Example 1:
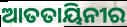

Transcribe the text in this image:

ଆତତାୟିନୀର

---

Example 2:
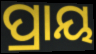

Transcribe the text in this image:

ପ୍ରାୟ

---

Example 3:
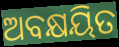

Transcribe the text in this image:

ଅବକ୍ଷୟିତ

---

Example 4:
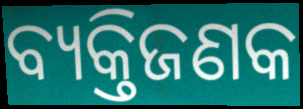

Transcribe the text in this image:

ବ୍ୟକ୍ତିଜଣକ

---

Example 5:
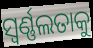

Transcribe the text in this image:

ସ୍ଵର୍ଣ୍ଣଲତାକୁ